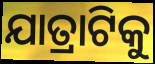
ଯାତ୍ରାଟିକୁ